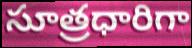
సూత్రధారిగా